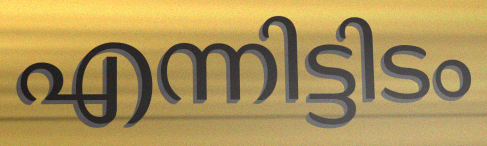
എന്നിട്ടിടം